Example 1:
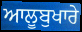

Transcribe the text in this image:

ਆਲੂਬੁਖਾਰੇ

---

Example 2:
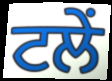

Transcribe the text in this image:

ਟਲੇਂ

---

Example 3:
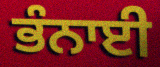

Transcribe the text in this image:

ਭੰਨਾਈ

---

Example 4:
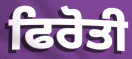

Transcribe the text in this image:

ਫਿਰੋਤੀ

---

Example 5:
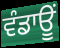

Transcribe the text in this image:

ਵੰਡਾਊਂ